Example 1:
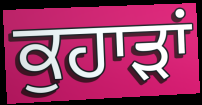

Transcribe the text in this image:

ਕੁਹਾੜਾਂ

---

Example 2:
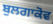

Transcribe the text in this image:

ਬੁਲਗਾਕੋਵ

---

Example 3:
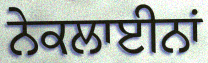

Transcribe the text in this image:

ਨੇਕਲਾਈਨਾਂ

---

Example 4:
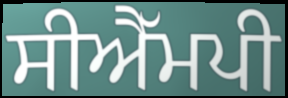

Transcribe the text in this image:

ਸੀਐੱਮਪੀ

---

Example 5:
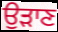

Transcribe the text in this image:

ਉਡ਼ਾਣ